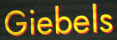
Giebels